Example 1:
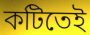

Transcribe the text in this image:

কটিতেই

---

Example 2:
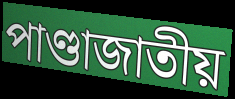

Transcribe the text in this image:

পাণ্ডাজাতীয়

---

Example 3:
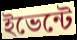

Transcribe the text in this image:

ইভেন্টে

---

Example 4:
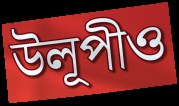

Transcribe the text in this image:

উলূপীও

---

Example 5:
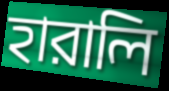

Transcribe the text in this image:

হারালি